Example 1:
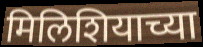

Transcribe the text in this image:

मिलिशियाच्या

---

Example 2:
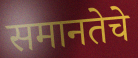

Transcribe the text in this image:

समानतेचे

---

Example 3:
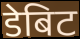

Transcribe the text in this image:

डेबिट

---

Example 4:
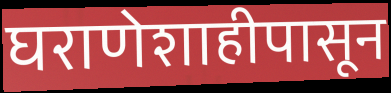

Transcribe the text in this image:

घराणेशाहीपासून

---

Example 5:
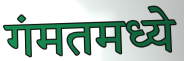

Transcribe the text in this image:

गंमतमध्ये